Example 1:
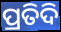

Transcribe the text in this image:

ପ୍ରତିଦି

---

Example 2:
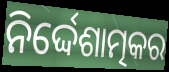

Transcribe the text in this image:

ନିର୍ଦ୍ଦେଶାତ୍ମକର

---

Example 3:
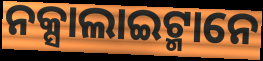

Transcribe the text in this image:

ନକ୍ସାଲାଇଟ୍ମାନେ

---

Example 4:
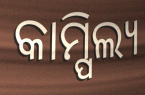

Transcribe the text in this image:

କାମ୍ପିଲ୍ୟ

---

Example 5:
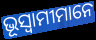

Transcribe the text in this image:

ଭୂସ୍ୱାମୀମାନେ